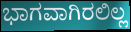
ಭಾಗವಾಗಿರಲಿಲ್ಲ